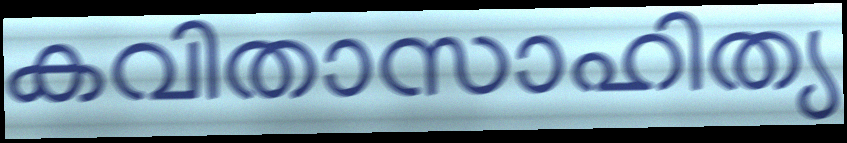
കവിതാസാഹിത്യ